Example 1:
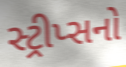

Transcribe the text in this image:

સ્ટ્રીપ્સનો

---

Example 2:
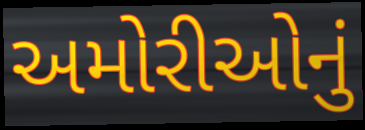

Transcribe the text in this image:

અમોરીઓનું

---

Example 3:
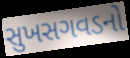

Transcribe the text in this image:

સુખસગવડનો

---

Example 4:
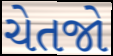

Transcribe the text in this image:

ચેતજો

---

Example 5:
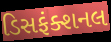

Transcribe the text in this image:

ડિસફંક્શનલ